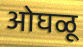
ओघळू